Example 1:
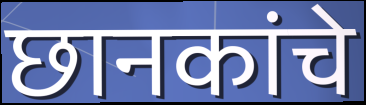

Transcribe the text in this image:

छानकांचे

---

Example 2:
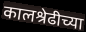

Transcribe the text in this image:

कालश्रेढीच्या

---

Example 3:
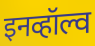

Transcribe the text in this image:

इनव्हॉल्व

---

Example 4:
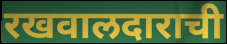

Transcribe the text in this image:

रखवालदाराची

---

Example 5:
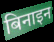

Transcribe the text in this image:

बिनाइन